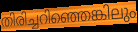
തിരിച്ചറിഞ്ഞെങ്കിലും